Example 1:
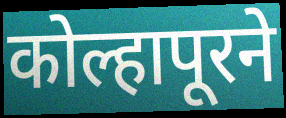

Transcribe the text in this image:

कोल्हापूरने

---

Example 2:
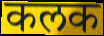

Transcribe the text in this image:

कलक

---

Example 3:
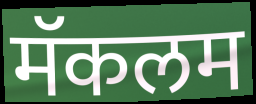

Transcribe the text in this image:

मॅकलम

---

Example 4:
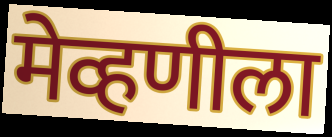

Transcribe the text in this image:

मेव्हणीला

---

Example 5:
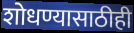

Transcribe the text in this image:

शोधण्यासाठीही